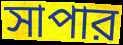
সাপার